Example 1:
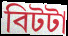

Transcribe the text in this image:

বিটটা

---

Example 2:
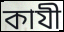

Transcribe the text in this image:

কাযী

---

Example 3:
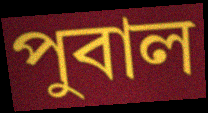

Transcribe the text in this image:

পুবাল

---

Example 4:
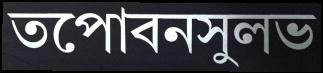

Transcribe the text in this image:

তপোবনসুলভ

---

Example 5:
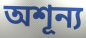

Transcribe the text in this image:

অশূন্য